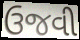
ઉજવી